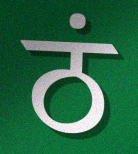
ठं